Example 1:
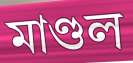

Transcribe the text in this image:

মাণ্ডল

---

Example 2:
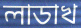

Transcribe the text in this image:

লাডাখ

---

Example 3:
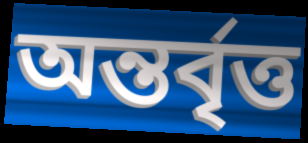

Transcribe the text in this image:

অন্তৰ্বৃত্ত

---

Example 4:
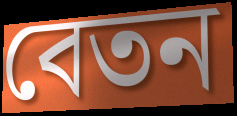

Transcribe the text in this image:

বেতন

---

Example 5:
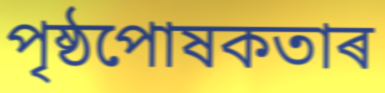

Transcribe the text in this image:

পৃষ্ঠপোষকতাৰ